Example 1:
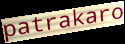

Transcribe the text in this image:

patrakaro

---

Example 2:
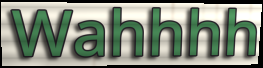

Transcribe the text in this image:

Wahhhh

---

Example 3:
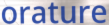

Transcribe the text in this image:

orature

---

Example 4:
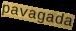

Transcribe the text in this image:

pavagada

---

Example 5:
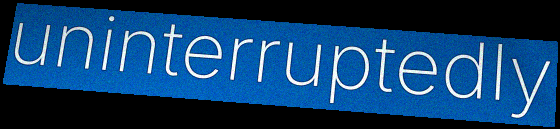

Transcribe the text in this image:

uninterruptedly